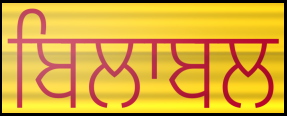
ਬਿਲਾਬਲ